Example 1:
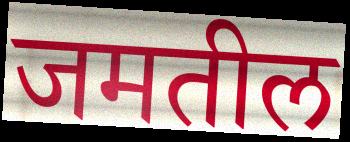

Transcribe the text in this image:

जमतील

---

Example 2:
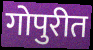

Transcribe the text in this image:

गोपुरीत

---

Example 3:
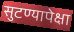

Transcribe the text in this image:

सुटण्यापेक्षा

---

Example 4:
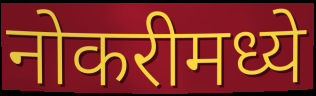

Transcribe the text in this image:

नोकरीमध्ये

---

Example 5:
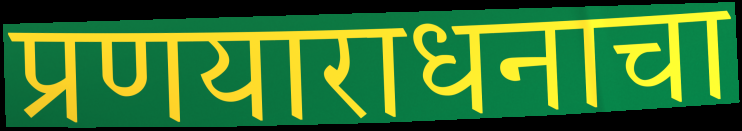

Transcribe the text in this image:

प्रणयाराधनाचा